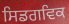
ਸਿਡਗਵਿਕ